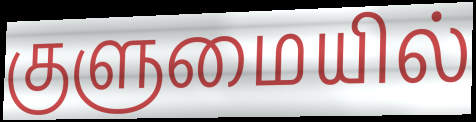
குளுமையில்